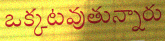
ఒక్కటవుతున్నారు